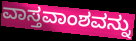
ವಾಸ್ತವಾಂಶವನ್ನು